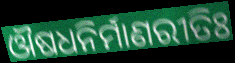
ଔଷଧନିର୍ମାଣରୀତିଃ